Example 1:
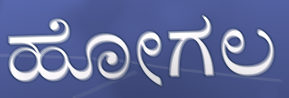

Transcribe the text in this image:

ಹೋಗಲ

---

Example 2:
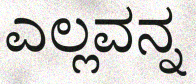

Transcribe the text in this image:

ಎಲ್ಲವನ್ನ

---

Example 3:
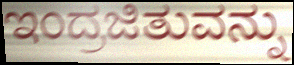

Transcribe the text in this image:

ಇಂದ್ರಜಿತುವನ್ನು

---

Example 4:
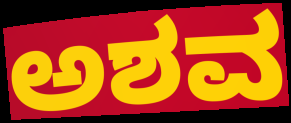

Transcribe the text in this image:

ಅಶವ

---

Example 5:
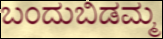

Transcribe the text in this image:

ಬಂದುಬಿಡಮ್ಮ